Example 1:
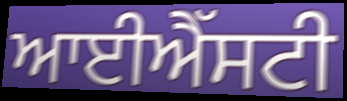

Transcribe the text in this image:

ਆਈਐੱਸਟੀ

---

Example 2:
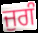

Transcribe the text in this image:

ਜੁਗੰ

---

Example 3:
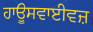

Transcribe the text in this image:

ਹਾਊਸਵਾਈਵਜ਼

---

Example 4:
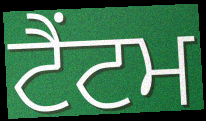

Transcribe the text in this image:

ਟੈਂਟਮ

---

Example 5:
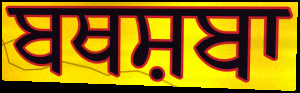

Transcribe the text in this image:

ਬਥਸ਼ਬਾ